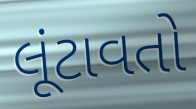
લૂંટાવતો